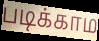
படிக்காம